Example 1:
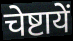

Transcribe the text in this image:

चेष्टायें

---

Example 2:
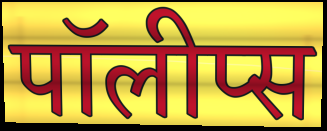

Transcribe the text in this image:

पॉलीप्स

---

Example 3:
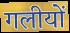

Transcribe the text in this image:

गलीयों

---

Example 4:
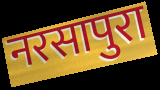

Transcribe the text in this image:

नरसापुरा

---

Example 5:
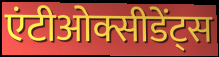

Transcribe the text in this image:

एंटीओक्सीडेंट्स